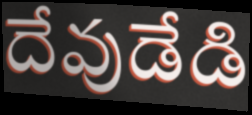
దేవుడేడి